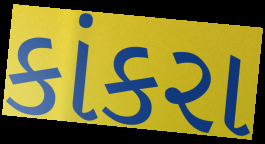
કાંકરા